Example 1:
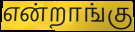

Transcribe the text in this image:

என்றாங்கு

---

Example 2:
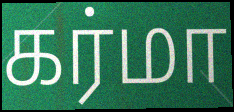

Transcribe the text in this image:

கர்மா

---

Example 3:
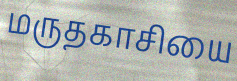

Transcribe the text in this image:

மருதகாசியை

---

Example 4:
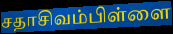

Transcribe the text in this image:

சதாசிவம்பிள்ளை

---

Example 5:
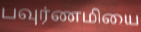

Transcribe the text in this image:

பவுர்ணமியை